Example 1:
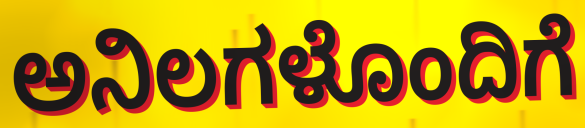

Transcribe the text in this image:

ಅನಿಲಗಳೊಂದಿಗೆ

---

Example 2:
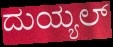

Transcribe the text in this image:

ದುಯ್ಯಲ್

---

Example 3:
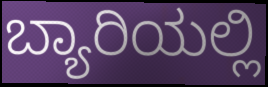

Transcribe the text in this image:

ಬ್ಯಾರಿಯಲ್ಲಿ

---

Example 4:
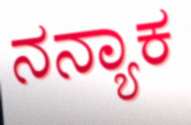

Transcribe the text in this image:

ನನ್ಯಾಕ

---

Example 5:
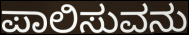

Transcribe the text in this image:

ಪಾಲಿಸುವನು